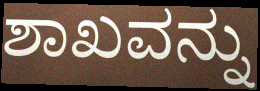
ಶಾಖವನ್ನು